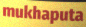
mukhaputa